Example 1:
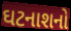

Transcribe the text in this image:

ઘટનાશનો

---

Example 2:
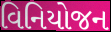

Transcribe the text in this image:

વિનિયોજન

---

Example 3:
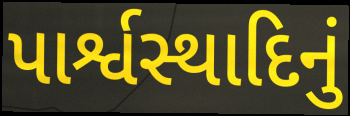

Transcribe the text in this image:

પાર્શ્વસ્થાદિનું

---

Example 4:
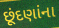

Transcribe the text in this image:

છૂંદણાંના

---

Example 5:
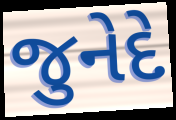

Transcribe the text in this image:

જુનેદે